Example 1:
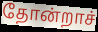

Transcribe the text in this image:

தோன்றாச்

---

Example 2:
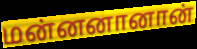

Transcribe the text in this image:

மன்னனானான்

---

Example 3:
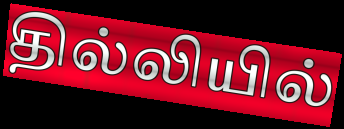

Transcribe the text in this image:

தில்லியில்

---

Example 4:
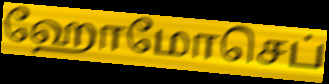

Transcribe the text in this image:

ஹோமோசெப்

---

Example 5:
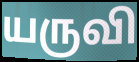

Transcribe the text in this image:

யருவி